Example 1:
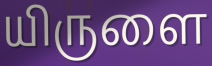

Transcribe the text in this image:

யிருளை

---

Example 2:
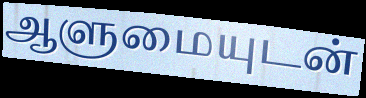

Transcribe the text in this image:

ஆளுமையுடன்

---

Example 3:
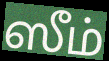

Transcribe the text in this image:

ஸீம்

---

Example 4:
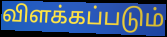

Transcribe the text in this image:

விளக்கப்படும்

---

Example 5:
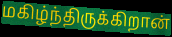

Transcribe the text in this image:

மகிழ்ந்திருக்கிறான்